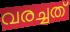
വരച്ചത്